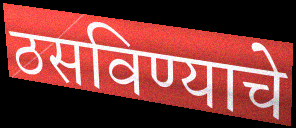
ठसविण्याचे